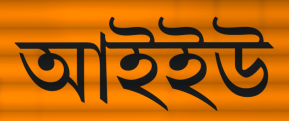
আইইউ